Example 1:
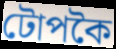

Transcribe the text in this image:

টোপকৈ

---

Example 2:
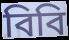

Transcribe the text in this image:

বিবি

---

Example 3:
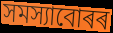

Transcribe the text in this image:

সমস্যাবোৰৰ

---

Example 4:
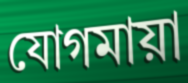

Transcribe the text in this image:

যোগমায়া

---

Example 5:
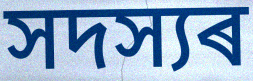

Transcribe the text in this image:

সদস্যৰ